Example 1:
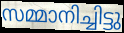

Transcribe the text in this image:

സമ്മാനിച്ചിട്ടു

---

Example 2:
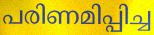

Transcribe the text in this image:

പരിണമിപ്പിച്ച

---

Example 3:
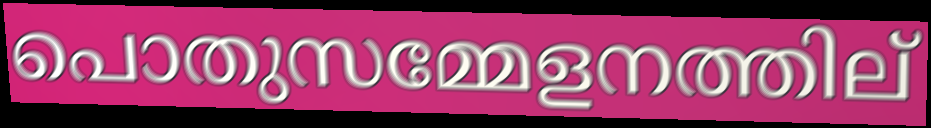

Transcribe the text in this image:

പൊതുസമ്മേളനത്തില്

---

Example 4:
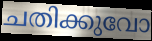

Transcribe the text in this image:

ചതിക്കുവോ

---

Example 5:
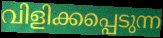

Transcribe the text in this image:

വിളിക്കപ്പെടുന്ന